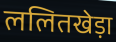
ललितखेड़ा